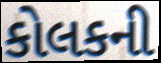
કોલકની